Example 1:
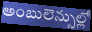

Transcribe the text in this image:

అంబులెన్సుల్లో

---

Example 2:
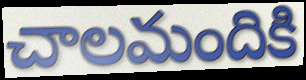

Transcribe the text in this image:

చాలమందికి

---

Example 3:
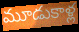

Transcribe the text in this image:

మూడుకాళ్ల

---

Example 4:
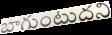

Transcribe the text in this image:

బాగుంటుదని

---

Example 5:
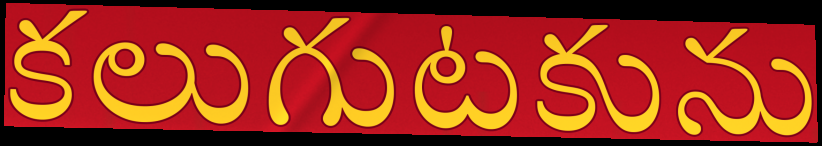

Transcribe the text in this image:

కలుగుటకును